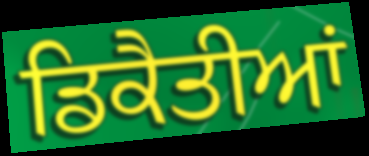
ਡਿਕੈਤੀਆਂ